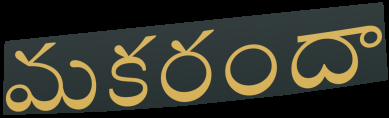
మకరందా